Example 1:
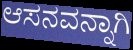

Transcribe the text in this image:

ಆಸನವನ್ನಾಗಿ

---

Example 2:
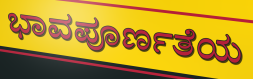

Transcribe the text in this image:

ಭಾವಪೂರ್ಣತೆಯ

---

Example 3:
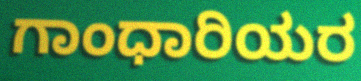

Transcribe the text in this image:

ಗಾಂಧಾರಿಯರ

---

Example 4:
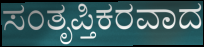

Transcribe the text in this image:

ಸಂತೃಪ್ತಿಕರವಾದ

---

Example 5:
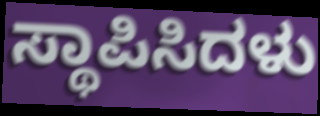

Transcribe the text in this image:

ಸ್ಥಾಪಿಸಿದಳು